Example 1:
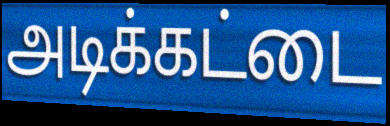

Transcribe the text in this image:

அடிக்கட்டை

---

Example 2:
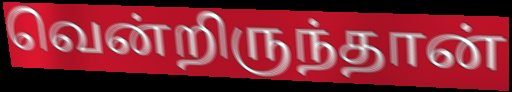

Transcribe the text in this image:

வென்றிருந்தான்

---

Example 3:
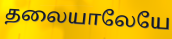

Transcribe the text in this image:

தலையாலேயே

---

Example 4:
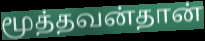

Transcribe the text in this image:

மூத்தவன்தான்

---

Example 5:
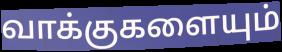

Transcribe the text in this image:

வாக்குகளையும்